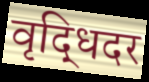
वृद्धिदर